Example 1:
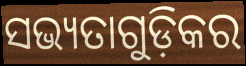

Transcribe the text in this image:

ସଭ୍ୟତାଗୁଡ଼ିକର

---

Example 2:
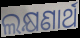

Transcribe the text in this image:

ଲକ୍ଷଣାର୍ଥ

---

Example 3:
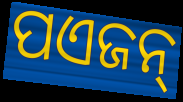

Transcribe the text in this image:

ପଏଜନ୍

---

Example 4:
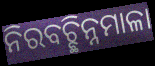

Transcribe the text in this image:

ନିରବଚ୍ଛିନ୍ନମାଳା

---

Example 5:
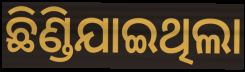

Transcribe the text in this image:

ଛିଣ୍ଡିଯାଇଥିଲା